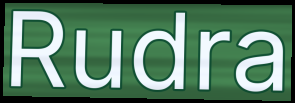
Rudra